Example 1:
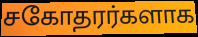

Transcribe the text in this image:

சகோதரர்களாக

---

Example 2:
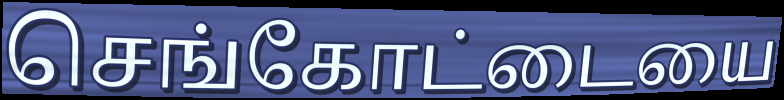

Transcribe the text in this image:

செங்கோட்டையை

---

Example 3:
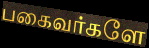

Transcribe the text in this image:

பகைவர்களே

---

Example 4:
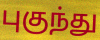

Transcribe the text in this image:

புகுந்து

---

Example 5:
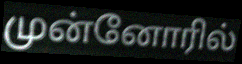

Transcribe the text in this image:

முன்னோரில்